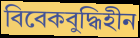
বিবেকবুদ্ধিহীন